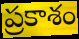
ప్రకాశం